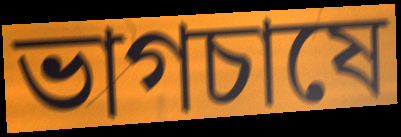
ভাগচাষে